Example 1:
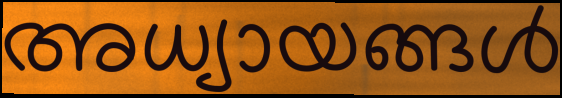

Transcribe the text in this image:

അധ്യായങ്ങൾ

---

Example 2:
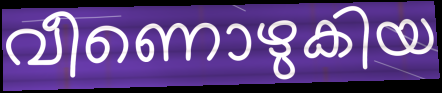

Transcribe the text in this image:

വീണൊഴുകിയ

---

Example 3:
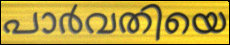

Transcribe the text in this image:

പാർവതിയെ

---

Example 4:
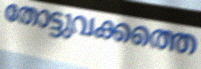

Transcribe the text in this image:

തോട്ടുവക്കത്തെ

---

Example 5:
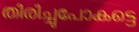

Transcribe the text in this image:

തിരിച്ചുപോകട്ടെ